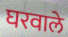
घरवाले